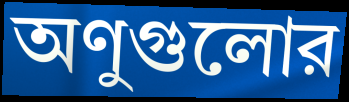
অণুগুলোর